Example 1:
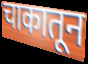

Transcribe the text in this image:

चाकातून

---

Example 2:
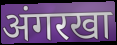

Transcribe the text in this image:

अंगरखा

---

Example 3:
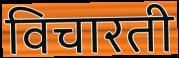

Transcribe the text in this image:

विचारती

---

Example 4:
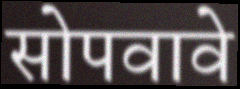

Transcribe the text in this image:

सोपवावे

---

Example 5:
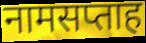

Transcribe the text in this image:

नामसप्ताह